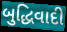
બુદ્ધિવાદી